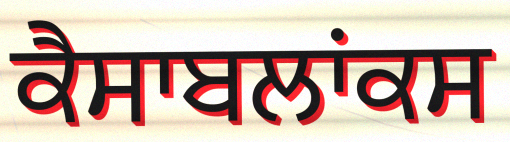
ਕੈਸਾਬਲਾਂਕਸ